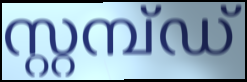
സ്റ്റമ്പ്ഡ്